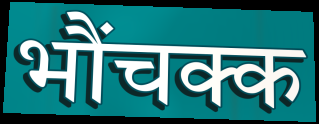
भौंचक्क